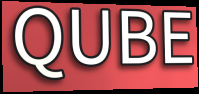
QUBE